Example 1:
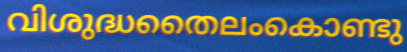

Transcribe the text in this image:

വിശുദ്ധതൈലംകൊണ്ടു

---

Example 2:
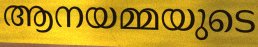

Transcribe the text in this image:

ആനയമ്മയുടെ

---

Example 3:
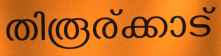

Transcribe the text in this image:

തിരൂര്ക്കാട്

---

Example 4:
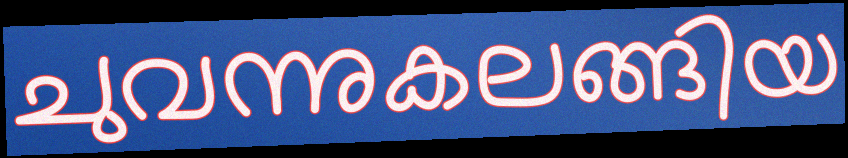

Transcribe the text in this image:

ചുവന്നുകലങ്ങിയ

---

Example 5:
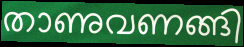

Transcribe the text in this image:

താണുവണങ്ങി